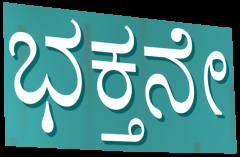
ಭಕ್ತನೇ